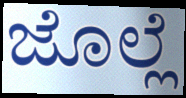
ಜೊಲ್ಲೆ